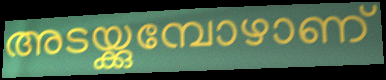
അടയ്ക്കുമ്പോഴാണ്